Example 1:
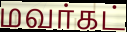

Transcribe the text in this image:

மவர்கட்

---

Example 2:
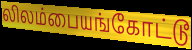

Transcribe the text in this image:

லிலம்பையங்கோட்டூ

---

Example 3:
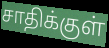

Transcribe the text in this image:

சாதிக்குள்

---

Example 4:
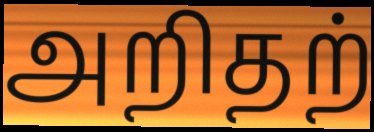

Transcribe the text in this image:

அறிதற்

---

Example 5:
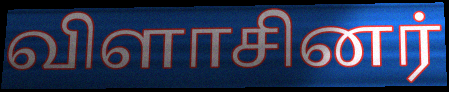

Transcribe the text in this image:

விளாசினர்